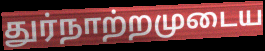
துர்நாற்றமுடைய